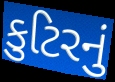
કુટિરનું